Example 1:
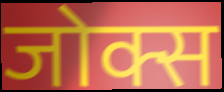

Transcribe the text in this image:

जोक्स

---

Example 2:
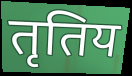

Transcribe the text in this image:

तृतिय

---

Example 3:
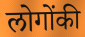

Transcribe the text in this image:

लोगोंकी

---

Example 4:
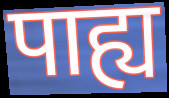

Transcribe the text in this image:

पाह्य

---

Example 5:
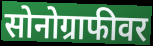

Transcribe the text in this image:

सोनोग्राफीवर